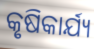
କୃଷିକାର୍ଯ୍ୟ